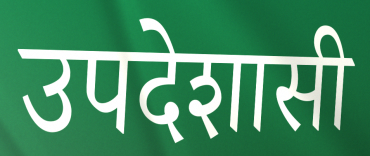
उपदेशासी